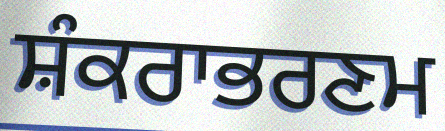
ਸ਼ੰਕਰਾਭਰਣਮ